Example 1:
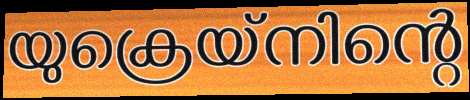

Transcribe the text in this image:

യുക്രെയ്നിന്റെ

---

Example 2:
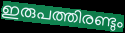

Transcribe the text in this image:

ഇരുപത്തിരണ്ടും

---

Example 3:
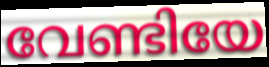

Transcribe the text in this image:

വേണ്ടിയേ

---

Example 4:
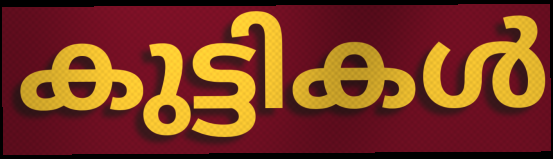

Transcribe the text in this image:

കുട്ടികൾ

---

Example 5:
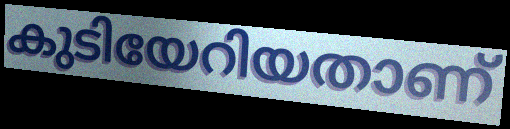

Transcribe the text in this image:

കുടിയേറിയതാണ്